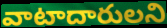
వాటాదారులని